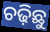
ଚଢ଼ିଛୁ